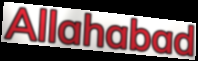
Allahabad